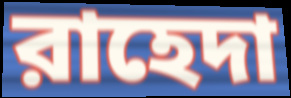
রাহেদা